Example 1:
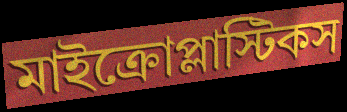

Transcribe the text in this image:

মাইক্রোপ্লাস্টিকস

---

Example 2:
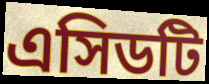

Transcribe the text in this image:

এসিডটি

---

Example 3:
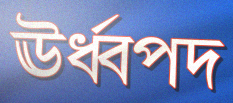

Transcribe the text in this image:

ঊর্ধ্বপদ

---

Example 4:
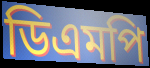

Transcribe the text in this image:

ডিএমপি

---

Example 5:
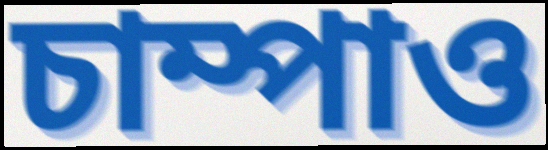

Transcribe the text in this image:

চাম্পাও